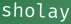
sholay